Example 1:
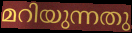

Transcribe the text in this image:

മറിയുന്നതു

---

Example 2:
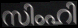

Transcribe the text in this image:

സിംഹി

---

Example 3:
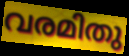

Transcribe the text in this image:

വരമിതു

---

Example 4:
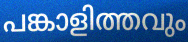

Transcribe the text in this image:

പങ്കാളിത്തവും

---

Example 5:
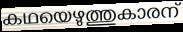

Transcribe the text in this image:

കഥയെഴുത്തുകാരന്